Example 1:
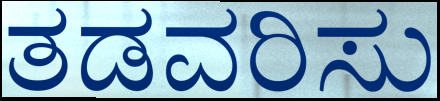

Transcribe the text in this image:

ತಡವರಿಸು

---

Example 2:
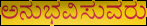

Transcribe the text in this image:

ಅನುಭವಿಸುವರು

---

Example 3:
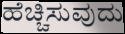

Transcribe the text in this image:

ಹೆಚ್ಚಿಸುವುದು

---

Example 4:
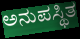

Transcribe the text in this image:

ಅನುಪಸ್ಥಿತ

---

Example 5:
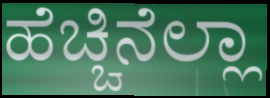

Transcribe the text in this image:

ಹೆಚ್ಚಿನೆಲ್ಲಾ